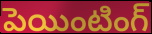
పెయింటింగ్